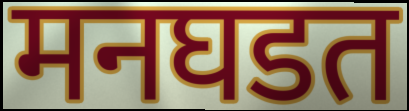
मनघडत